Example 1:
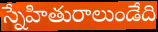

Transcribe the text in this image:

స్నేహితురాలుండేది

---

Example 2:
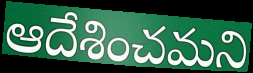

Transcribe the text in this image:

ఆదేశించమని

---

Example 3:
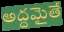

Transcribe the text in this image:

అద్దమైతే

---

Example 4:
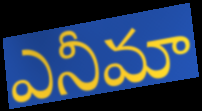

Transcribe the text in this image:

ఎనీమా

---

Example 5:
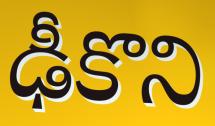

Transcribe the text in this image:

ఢీకొని